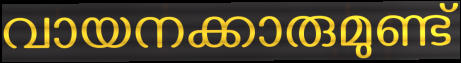
വായനക്കാരുമുണ്ട്